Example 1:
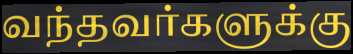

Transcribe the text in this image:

வந்தவர்களுக்கு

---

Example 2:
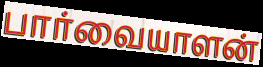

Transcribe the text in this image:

பார்வையாளன்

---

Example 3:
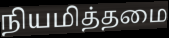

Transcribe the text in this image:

நியமித்தமை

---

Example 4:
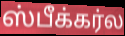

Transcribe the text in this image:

ஸ்பீக்கர்ல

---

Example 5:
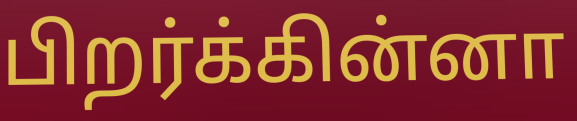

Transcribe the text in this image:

பிறர்க்கின்னா